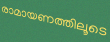
രാമായണത്തിലൂടെ